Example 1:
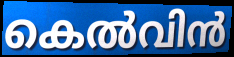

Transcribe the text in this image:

കെൽവിൻ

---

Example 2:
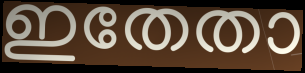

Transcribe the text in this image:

ഇതേതാ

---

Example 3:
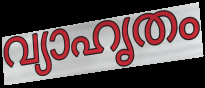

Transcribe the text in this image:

വ്യാഹൃതം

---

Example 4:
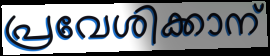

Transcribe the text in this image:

പ്രവേശിക്കാന്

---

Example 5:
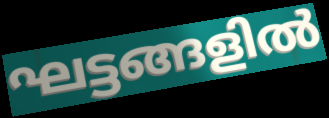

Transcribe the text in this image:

ഘട്ടങ്ങളിൽ